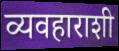
व्यवहाराशी